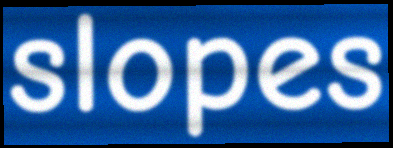
slopes